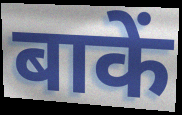
बाकें